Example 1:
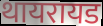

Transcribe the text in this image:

थायरायड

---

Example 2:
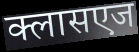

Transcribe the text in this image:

क्लासएज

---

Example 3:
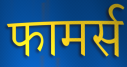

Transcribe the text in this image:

फामर्स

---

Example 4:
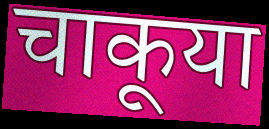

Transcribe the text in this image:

चाकूया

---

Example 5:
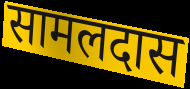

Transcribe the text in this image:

सामलदास